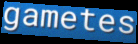
gametes